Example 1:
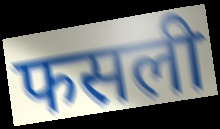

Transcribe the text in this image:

फसली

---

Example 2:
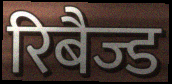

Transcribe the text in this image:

रिबैज्ड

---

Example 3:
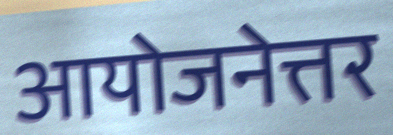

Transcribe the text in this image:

आयोजनेत्तर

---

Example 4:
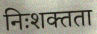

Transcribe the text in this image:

निःशक्तता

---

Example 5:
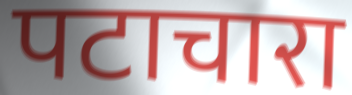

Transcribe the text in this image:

पटाचारा